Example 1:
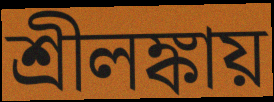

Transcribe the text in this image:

শ্রীলঙ্কায়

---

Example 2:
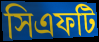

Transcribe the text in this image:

সিএফটি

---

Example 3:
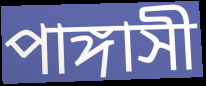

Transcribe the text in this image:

পাঙ্গাসী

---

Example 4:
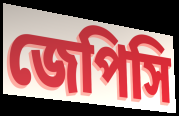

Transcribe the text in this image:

জেপিসি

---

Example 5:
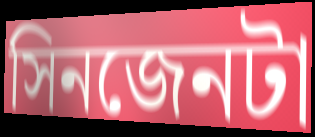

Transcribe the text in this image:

সিনজেনটা